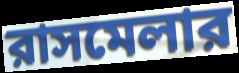
রাসমেলার